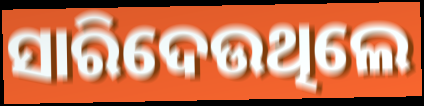
ସାରିଦେଉଥିଲେ